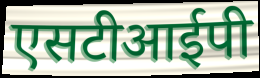
एसटीआईपी